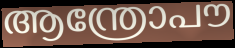
ആന്ത്രോപൗ